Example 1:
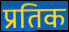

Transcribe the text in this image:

प्रतिक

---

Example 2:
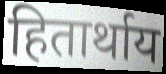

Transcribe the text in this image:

हितार्थाय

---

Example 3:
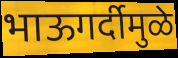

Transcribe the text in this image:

भाऊगर्दीमुळे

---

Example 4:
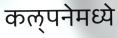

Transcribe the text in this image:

कल्पनेमध्ये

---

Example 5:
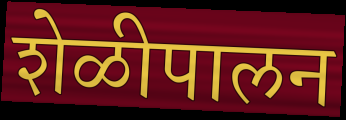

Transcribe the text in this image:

शेळीपालन